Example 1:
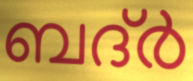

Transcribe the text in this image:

ബദ്ർ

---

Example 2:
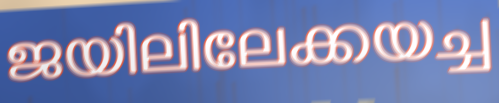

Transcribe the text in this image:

ജയിലിലേക്കയച്ച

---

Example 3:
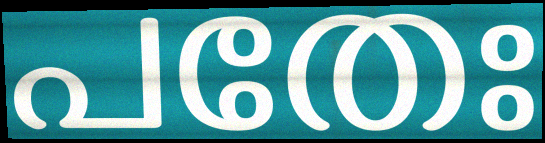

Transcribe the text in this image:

പതേഃ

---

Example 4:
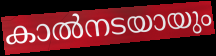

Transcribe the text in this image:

കാൽനടയായും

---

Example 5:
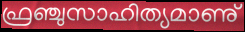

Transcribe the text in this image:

ഫ്രഞ്ചുസാഹിത്യമാണു്